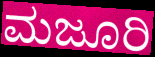
ಮಜೂರಿ